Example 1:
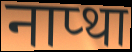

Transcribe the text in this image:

नाप्था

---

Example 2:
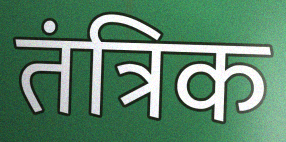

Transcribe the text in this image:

तंत्रिक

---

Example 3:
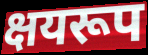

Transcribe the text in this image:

क्षयरूप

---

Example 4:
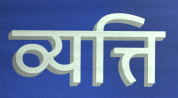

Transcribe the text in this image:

व्यत्ति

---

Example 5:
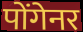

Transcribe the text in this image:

पोंगेनर